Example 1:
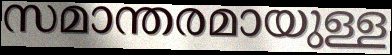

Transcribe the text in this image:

സമാന്തരമായുള്ള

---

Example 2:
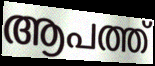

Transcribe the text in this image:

ആപത്ത്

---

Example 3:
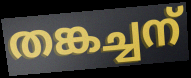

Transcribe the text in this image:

തങ്കച്ചന്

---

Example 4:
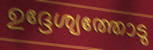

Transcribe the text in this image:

ഉദ്ദേശ്യത്തോടു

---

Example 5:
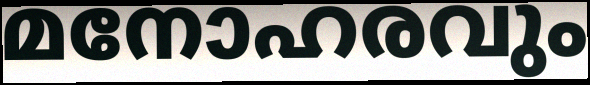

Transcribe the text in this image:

മനോഹരവും